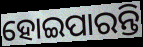
ହୋଇପାରନ୍ତି